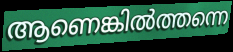
ആണെങ്കിൽത്തന്നെ